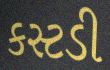
કસ્ટડી